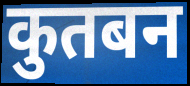
कुतबन